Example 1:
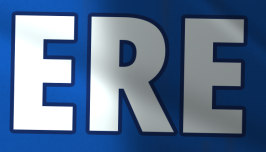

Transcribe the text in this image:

ERE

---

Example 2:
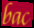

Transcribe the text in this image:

bac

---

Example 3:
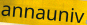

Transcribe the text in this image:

annauniv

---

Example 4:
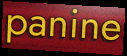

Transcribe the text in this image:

panine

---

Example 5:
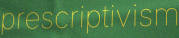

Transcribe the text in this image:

prescriptivism